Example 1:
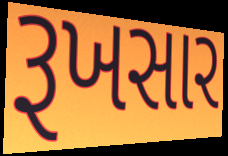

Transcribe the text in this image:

રૂખસાર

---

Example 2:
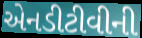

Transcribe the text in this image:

એનડીટીવીની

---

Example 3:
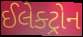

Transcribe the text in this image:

ઈલેક્ટ્રોન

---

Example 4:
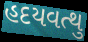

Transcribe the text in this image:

હદયવત્થુ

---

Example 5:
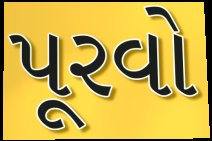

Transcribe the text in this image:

પૂરવો